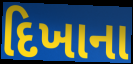
દિખાના